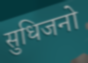
सुधिजनो